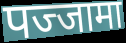
पज्जामा